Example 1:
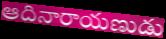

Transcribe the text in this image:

ఆదినారాయణుడు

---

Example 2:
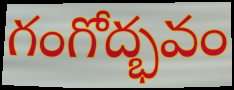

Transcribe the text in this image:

గంగోద్భవం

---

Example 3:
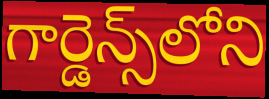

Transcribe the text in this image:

గార్డెన్స్‌లోని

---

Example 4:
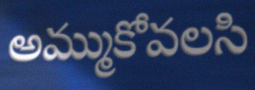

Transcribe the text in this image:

అమ్ముకోవలసి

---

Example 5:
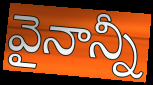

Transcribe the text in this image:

వైనాన్నీ